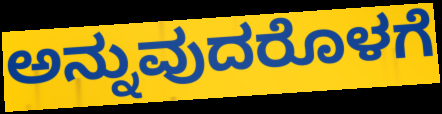
ಅನ್ನುವುದರೊಳಗೆ